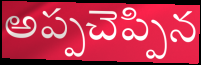
అప్పచెప్పిన